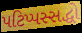
પટિપ્પસ્સદ્ધો